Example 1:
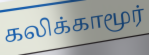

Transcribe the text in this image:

கலிக்காமூர்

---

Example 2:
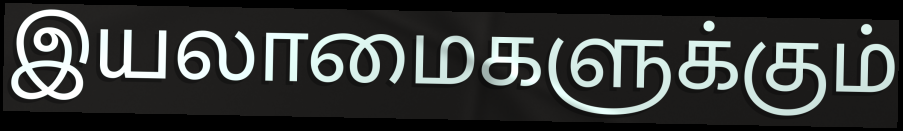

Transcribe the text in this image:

இயலாமைகளுக்கும்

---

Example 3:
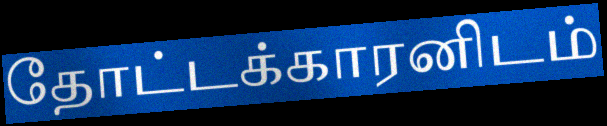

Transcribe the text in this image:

தோட்டக்காரனிடம்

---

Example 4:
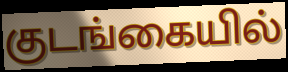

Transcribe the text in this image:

குடங்கையில்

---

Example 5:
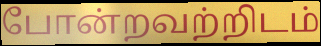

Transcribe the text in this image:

போன்றவற்றிடம்